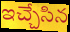
ఇచ్చేసిన